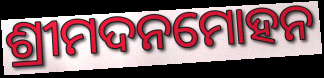
ଶ୍ରୀମଦନମୋହନ